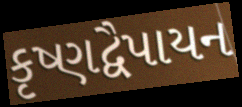
કૃષ્ણદ્વૈપાયન